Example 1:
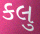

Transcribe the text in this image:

કલુ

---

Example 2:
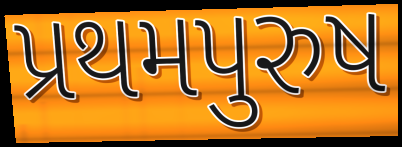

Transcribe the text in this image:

પ્રથમપુરુષ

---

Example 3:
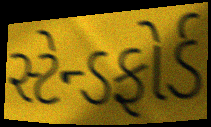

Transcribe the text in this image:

સ્ટેન્ડફોર્ડ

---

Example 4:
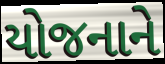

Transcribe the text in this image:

યોજનાને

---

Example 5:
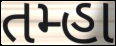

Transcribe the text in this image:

તમ્હા